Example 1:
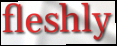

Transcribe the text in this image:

fleshly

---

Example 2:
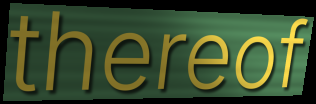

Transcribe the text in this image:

thereof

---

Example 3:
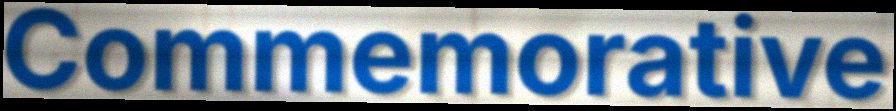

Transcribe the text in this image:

Commemorative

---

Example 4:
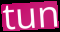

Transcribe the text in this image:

tun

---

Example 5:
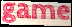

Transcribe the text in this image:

game